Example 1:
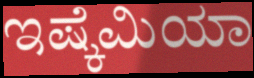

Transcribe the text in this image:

ಇಷ್ಕೆಮಿಯಾ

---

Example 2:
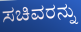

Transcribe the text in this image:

ಸಚಿವರನ್ನು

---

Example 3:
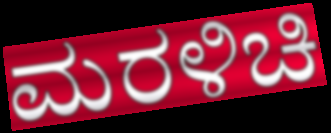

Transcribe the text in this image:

ಮರಳಿಚಿ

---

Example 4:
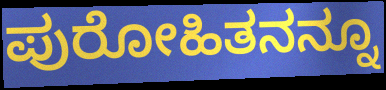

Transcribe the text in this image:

ಪುರೋಹಿತನನ್ನೂ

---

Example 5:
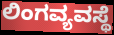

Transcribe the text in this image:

ಲಿಂಗವ್ಯವಸ್ಥೆ